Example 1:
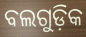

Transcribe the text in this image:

ବଲଗୁଡ଼ିକ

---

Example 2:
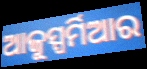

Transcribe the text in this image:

ଆଜୁସ୍ପର୍ମିଆର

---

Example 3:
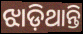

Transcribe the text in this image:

ଝାଡ଼ିଥାନ୍ତି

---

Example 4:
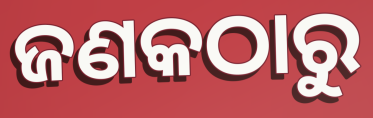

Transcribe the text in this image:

ଜଣକଠାରୁ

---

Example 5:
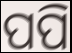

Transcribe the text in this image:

ପପି